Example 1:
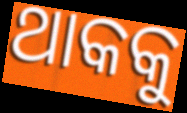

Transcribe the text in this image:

ଥାକକୁ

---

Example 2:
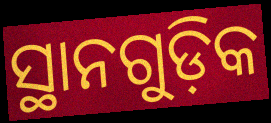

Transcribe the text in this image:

ସ୍ଥାନଗୁଡ଼ିକ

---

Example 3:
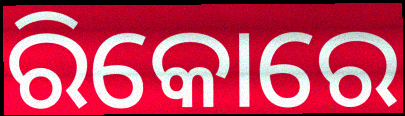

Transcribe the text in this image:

ରିକୋରେ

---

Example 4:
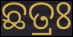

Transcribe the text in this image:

ଛତ୍ରଃ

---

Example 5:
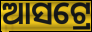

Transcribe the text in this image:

ଆସଟ୍ରେ